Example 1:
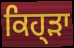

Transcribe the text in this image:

ਕਿਹ੍ੜਾ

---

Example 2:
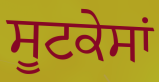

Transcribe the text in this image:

ਸੂਟਕੇਸਾਂ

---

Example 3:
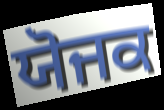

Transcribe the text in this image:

ਯੋਜਕ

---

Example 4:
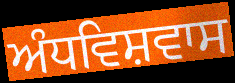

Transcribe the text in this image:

ਅੰਧਵਿਸ਼ਵਾਸ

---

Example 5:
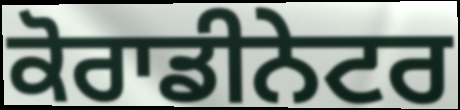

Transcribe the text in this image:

ਕੋਰਾਡੀਨੇਟਰ